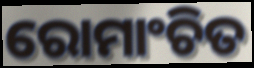
ରୋମାଂଚିତ